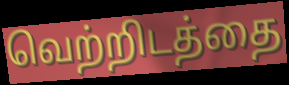
வெற்றிடத்தை